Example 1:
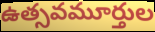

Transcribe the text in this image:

ఉత్సవమూర్తుల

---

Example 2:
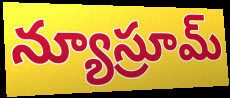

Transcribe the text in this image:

న్యూస్రూమ్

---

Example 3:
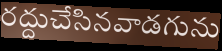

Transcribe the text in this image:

రద్దుచేసినవాడగును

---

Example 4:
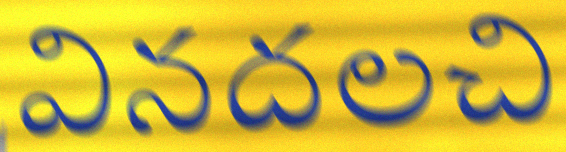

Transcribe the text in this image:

వినదలచి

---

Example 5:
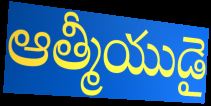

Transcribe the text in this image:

ఆత్మీయుడై